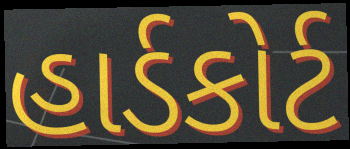
હાર્ડકોર્ટ